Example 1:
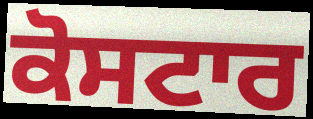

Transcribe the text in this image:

ਕੋਸਟਾਰ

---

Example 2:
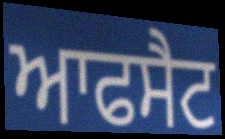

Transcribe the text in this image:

ਆਫਸੈਟ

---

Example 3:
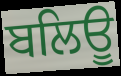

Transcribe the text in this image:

ਬਲਿਊ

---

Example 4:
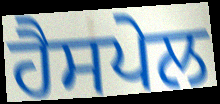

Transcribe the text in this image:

ਹੈਸਪੇਲ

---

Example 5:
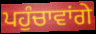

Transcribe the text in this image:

ਪਹੁੰਚਾਵਾਂਗੇ